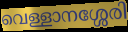
വെള്ളാനശ്ശേരി